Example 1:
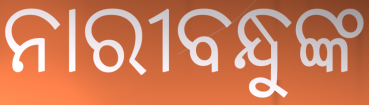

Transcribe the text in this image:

ନାରୀବନ୍ଧୁଙ୍କ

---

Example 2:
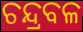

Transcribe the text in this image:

ଚନ୍ଦ୍ରବଳ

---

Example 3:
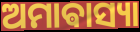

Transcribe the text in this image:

ଅମାଵାସ୍ୟା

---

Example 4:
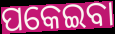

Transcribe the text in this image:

ପକେଇବା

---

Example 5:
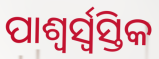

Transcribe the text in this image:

ପାଶ୍ୱର୍ସ୍ୱସ୍ତିକ